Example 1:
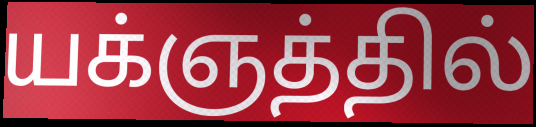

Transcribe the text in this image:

யக்ஞத்தில்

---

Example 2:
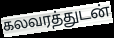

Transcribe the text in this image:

கலவரத்துடன்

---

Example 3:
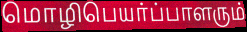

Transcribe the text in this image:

மொழிபெயர்ப்பாளரும்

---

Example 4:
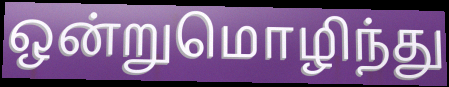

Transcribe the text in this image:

ஒன்றுமொழிந்து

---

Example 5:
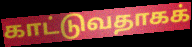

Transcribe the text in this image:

காட்டுவதாகக்